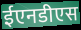
ईएनडीएस